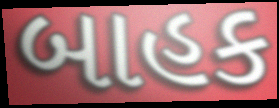
બાહક